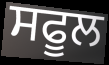
ਸਫੂਲ